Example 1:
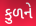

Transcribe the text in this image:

કુળને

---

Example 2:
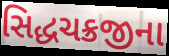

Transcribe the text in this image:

સિદ્ધચક્રજીના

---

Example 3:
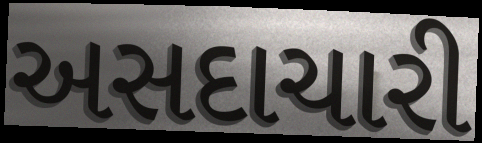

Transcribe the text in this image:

અસદાચારી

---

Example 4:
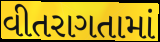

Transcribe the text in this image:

વીતરાગતામાં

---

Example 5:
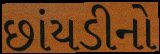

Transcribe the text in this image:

છાંયડીનો